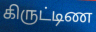
கிருட்டிண